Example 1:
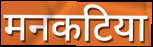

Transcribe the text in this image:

मनकटिया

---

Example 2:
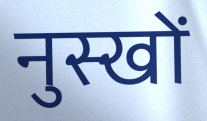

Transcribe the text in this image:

नुस्‍खों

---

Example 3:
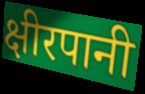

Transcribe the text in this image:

क्षीरपानी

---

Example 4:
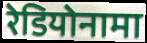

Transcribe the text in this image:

रेडियोनामा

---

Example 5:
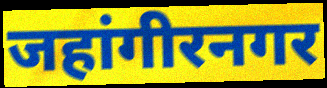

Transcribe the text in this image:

जहांगीरनगर